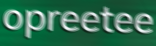
opreetee